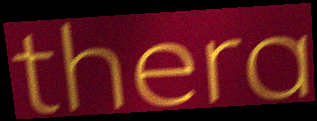
thera